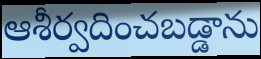
ఆశీర్వదించబడ్డాను